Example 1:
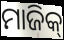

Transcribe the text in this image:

ମାଜିକ୍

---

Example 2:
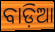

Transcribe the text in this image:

ବାଡ଼ିଆ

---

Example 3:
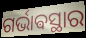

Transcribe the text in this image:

ଗର୍ଭାଵସ୍ଥାର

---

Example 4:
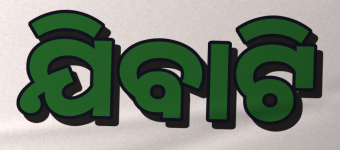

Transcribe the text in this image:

ଯିବାଟି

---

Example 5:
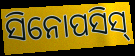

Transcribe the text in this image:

ସିନୋପସିସ୍